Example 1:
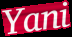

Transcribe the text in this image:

Yani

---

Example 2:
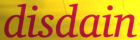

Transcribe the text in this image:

disdain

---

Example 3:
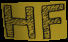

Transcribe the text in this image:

HF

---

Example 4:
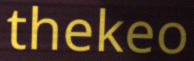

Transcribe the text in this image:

thekeo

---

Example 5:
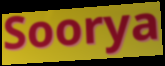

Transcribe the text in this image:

Soorya